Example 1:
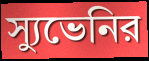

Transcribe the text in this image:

স্যুভেনির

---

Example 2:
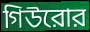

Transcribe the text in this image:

গিউরোর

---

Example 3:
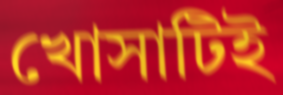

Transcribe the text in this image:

খোসাটিই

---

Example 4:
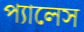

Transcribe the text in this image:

প্যালেস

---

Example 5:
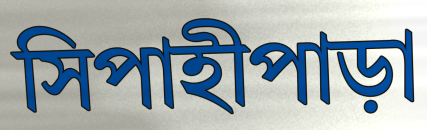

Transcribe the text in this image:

সিপাহীপাড়া